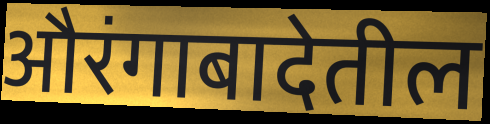
औरंगाबादेतील